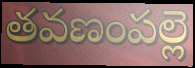
తవణంపల్లె